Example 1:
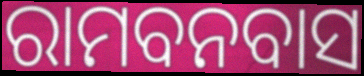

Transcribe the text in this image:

ରାମବନବାସ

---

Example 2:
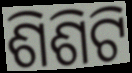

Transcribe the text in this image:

ଶିଶିଟି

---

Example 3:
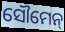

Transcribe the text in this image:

ସୌମେନ୍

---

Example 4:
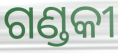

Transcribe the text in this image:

ଗଣ୍ଡକୀ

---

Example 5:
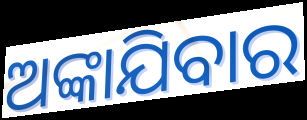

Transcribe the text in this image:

ଅଙ୍କାଯିବାର